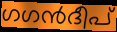
ഗഗൻദീപ്